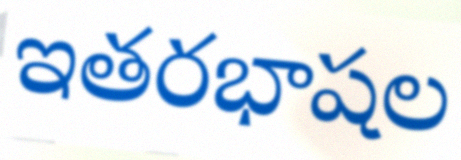
ఇతరభాషల